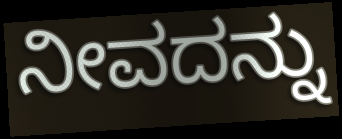
ನೀವದನ್ನು